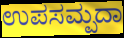
ಉಪಸಮ್ಪದಾ